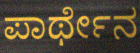
ಪಾರ್ಥೇನ